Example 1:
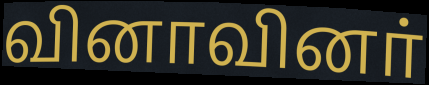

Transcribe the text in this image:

வினாவினர்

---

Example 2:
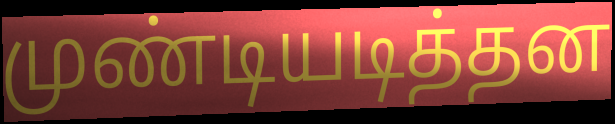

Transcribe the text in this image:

முண்டியடித்தன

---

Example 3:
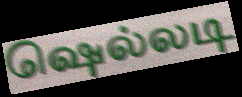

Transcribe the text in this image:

ஷெல்லடி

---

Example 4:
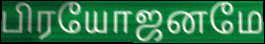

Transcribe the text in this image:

பிரயோஜனமே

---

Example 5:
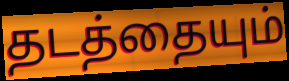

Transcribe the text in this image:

தடத்தையும்